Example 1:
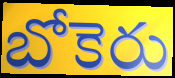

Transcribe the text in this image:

బోకెరు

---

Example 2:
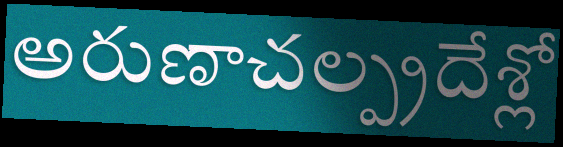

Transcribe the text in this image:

అరుణాచల్ప్రదేశ్లో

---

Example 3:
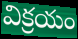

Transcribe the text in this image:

విక్రయం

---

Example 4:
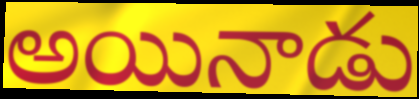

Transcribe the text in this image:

అయినాడు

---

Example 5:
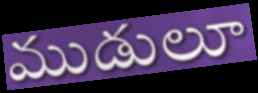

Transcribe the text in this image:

ముడులూ